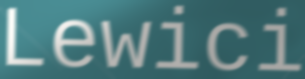
Lewici